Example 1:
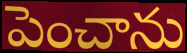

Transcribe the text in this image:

పెంచాను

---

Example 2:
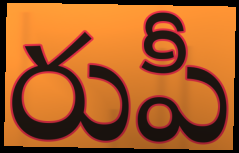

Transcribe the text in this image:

రుపీ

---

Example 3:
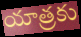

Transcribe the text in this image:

యాత్రకు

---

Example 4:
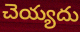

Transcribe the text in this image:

చెయ్యదు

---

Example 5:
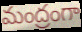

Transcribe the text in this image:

మంద్రంగా